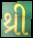
થ્રી